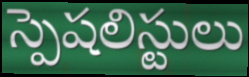
స్పెషలిస్టులు